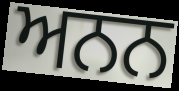
ਅਨਨ